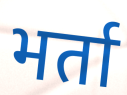
भर्ता